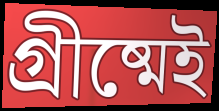
গ্রীষ্মেই